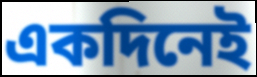
একদিনেই